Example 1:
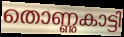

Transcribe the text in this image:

തൊണ്ണുകാട്ടി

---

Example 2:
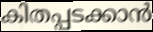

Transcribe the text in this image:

കിതപ്പടക്കാൻ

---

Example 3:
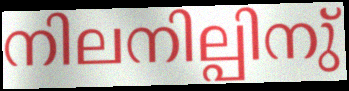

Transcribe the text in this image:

നിലനില്പിനു്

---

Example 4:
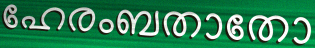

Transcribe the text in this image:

ഹേരംബതാതോ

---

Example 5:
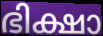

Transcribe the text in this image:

ഭിക്ഷാ